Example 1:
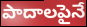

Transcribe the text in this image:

పాదాలపైనే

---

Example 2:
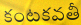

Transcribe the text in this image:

కంటకవతీ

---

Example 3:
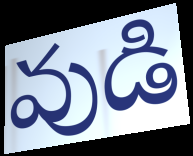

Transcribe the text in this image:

వుడి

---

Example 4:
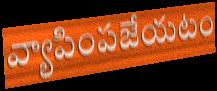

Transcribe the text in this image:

వ్యాపింపజేయటం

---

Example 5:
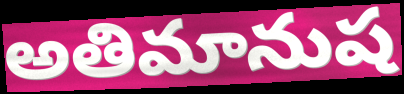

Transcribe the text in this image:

అతిమానుష